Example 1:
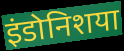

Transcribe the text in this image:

इंडोनिशया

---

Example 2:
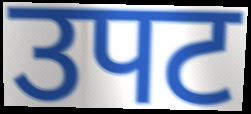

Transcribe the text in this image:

उपट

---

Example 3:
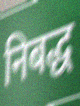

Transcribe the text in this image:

निबद्ध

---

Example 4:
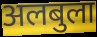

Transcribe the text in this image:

अलबुला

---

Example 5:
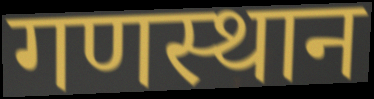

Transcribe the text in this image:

गणस्थान